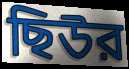
ছিউর